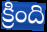
క్రింది